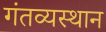
गंतव्यस्थान